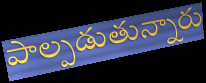
పాల్పడుతున్నారు